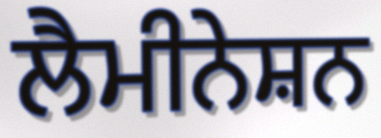
ਲੈਮੀਨੇਸ਼ਨ